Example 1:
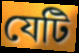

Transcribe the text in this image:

যেটি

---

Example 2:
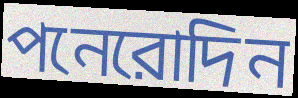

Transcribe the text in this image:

পনেরোদিন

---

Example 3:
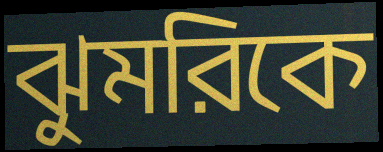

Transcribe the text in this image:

ঝুমরিকে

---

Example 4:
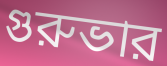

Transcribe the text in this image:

গুরুভার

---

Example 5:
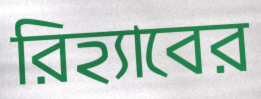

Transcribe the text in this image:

রিহ্যাবের